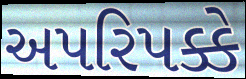
અપરિપક્કે